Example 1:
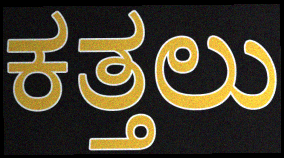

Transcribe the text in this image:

ಕತ್ತಲು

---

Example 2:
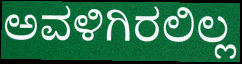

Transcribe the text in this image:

ಅವಳಿಗಿರಲಿಲ್ಲ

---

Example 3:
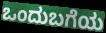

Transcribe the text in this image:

ಒಂದುಬಗೆಯ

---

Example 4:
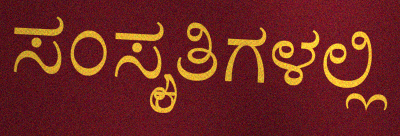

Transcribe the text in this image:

ಸಂಸ್ಕೃತಿಗಳಲ್ಲಿ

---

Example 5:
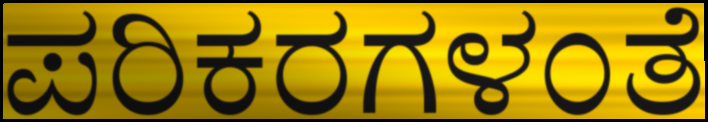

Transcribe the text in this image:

ಪರಿಕರಗಳಂತೆ